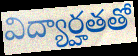
విద్యార్హతతో